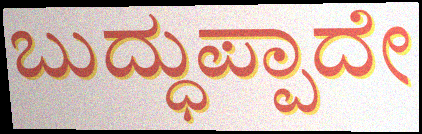
ಬುದ್ಧುಪ್ಪಾದೇ